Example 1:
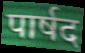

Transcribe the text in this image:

पार्षद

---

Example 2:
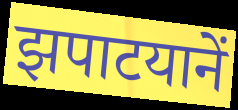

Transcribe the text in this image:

झपाटयानें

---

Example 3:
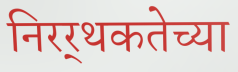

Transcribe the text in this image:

निरर्थकतेच्या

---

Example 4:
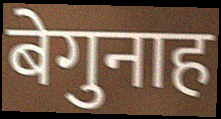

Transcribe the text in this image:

बेगुनाह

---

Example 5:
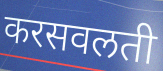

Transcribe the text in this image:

करसवलती